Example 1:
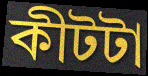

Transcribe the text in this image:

কীটটা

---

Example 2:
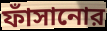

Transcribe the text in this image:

ফাঁসানোর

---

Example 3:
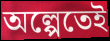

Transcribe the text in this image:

অল্পেতেই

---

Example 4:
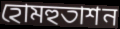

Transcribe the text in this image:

হোমহুতাশন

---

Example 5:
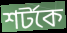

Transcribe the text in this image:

শর্টকে